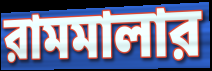
রামমালার